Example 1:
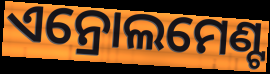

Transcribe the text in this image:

ଏନ୍ରୋଲମେଣ୍ଟ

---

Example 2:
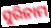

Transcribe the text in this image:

ସୁରିନାମ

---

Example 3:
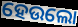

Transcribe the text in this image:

ହେଉଲୋ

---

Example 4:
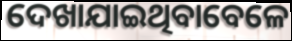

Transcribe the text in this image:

ଦେଖାଯାଇଥିବାବେଳେ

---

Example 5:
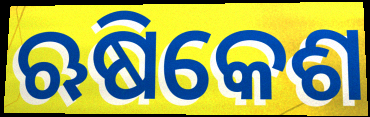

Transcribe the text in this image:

ଋଷିକେଶ